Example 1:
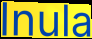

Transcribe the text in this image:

Inula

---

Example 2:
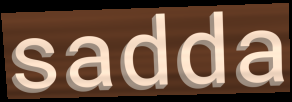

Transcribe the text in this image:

sadda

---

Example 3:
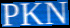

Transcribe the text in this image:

PKN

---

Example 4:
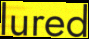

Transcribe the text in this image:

lured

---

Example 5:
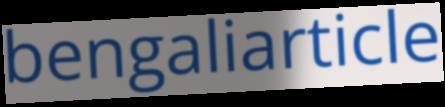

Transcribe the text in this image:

bengaliarticle